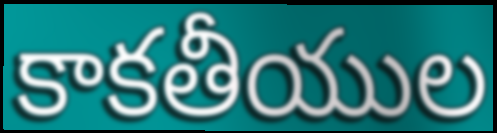
కాకతీయుల